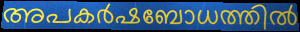
അപകർഷബോധത്തിൽ